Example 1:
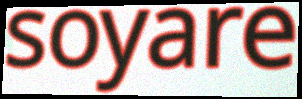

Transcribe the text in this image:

soyare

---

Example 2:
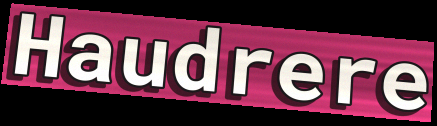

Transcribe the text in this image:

Haudrere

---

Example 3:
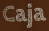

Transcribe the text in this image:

Caja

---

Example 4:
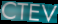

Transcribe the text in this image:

CTEV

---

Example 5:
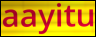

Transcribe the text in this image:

aayitu